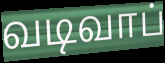
வடிவாப்